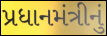
પ્રધાનમંત્રીનું